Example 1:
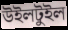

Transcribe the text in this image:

উইলটুইল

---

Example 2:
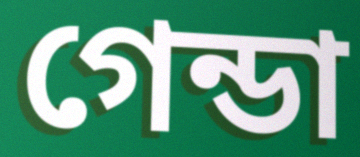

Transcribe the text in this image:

গেন্ডা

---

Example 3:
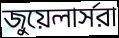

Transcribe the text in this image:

জুয়েলার্সরা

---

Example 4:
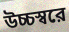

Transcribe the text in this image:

উচ্চস্বরে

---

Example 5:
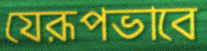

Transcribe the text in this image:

যেরূপভাবে